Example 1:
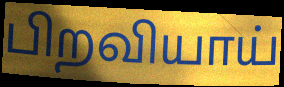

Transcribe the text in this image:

பிறவியாய்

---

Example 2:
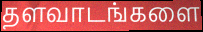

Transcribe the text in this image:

தளவாடங்களை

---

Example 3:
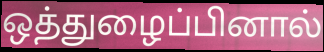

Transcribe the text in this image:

ஒத்துழைப்பினால்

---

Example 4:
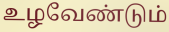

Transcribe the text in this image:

உழவேண்டும்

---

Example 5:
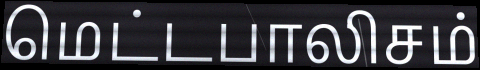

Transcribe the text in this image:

மெட்டபாலிசம்